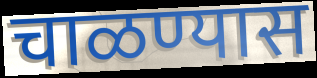
चाळण्यास